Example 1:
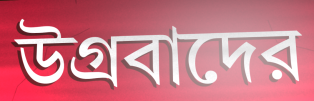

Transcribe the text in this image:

উগ্রবাদের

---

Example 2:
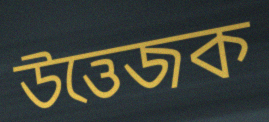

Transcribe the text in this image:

উত্তেজক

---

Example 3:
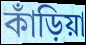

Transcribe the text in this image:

কাঁড়িয়া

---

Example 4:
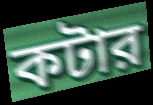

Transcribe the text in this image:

কটার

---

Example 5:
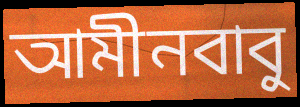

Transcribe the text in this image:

আমীনবাবু